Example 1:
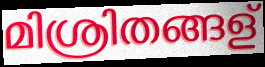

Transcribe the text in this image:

മിശ്രിതങ്ങള്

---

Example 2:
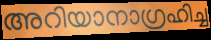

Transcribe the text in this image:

അറിയാനാഗ്രഹിച്ച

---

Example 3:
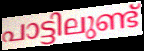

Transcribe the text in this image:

പാട്ടിലുണ്ട്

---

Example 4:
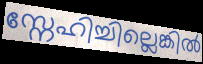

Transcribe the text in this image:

സ്നേഹിച്ചില്ലെങ്കിൽ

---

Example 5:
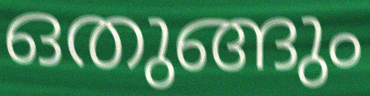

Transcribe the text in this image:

ഒതുങ്ങും